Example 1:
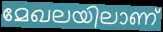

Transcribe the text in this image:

മേഖലയിലാണ്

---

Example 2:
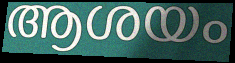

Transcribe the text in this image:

ആശയം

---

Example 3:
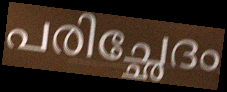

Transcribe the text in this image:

പരിച്ഛേദം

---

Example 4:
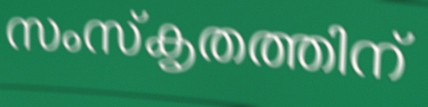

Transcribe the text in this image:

സംസ്‌കൃതത്തിന്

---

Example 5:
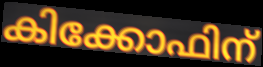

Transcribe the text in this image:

കിക്കോഫിന്